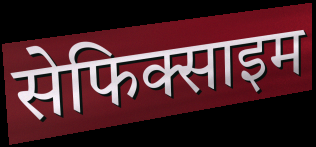
सेफिक्साइम